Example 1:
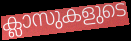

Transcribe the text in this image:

ക്ലാസുകളുടെ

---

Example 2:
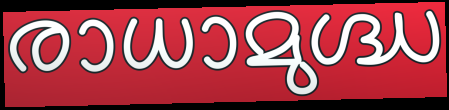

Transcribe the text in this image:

രാധാമുഗ്ദ്ധ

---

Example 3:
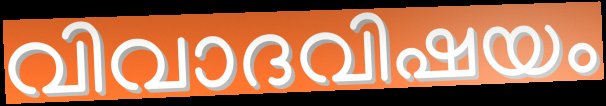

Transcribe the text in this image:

വിവാദവിഷയം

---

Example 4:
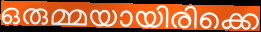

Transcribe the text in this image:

ഒരുമ്മയായിരിക്കെ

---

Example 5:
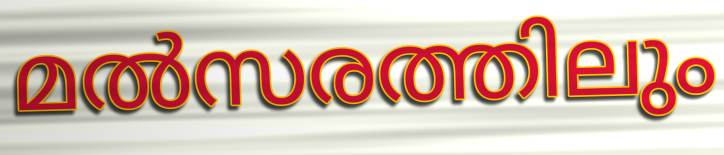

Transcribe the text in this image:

മൽസരത്തിലും